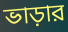
ভাড়ার